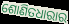
ଶୋଣିତଧାରାର